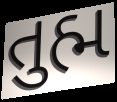
તુહ્મ